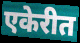
एकेरीत